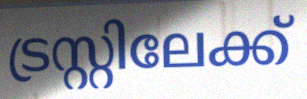
ട്രസ്റ്റിലേക്ക്